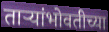
ताऱ्यांभोवतीच्या